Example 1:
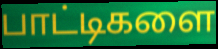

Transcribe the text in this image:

பாட்டிகளை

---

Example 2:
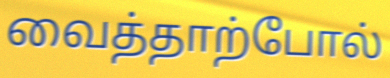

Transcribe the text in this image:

வைத்தாற்போல்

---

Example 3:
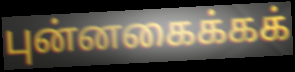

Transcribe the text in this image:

புன்னகைக்கக்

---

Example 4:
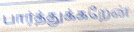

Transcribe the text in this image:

பார்த்துக்கறேன்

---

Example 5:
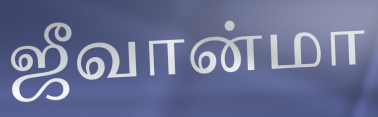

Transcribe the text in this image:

ஜீவான்மா